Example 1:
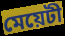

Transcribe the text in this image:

মেয়েটী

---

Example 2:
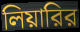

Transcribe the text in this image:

লিয়ারির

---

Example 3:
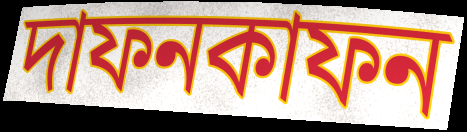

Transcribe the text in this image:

দাফনকাফন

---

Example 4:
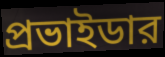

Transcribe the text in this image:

প্রভাইডার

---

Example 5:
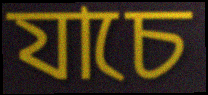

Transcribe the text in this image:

যাচে